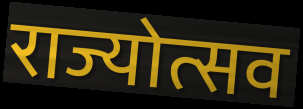
राज्योत्सव